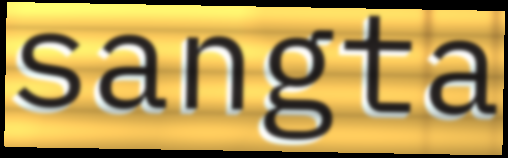
sangta